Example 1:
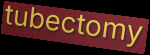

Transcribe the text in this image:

tubectomy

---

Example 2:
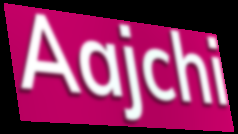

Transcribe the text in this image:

Aajchi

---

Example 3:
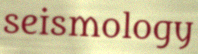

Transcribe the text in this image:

seismology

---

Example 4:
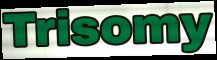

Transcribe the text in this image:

Trisomy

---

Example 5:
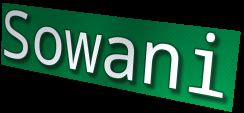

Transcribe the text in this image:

Sowani